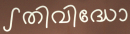
ഽതിവിദ്ധോ